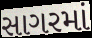
સાગરમાં